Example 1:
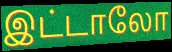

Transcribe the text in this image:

இட்டாலோ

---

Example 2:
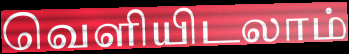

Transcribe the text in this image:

வெளியிடலாம்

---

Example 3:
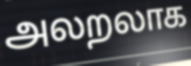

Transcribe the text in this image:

அலறலாக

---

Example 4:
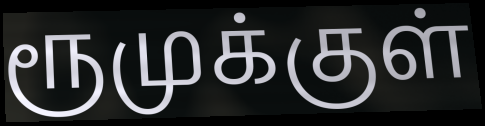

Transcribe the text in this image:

ரூமுக்குள்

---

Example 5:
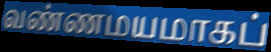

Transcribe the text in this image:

வண்ணமயமாகப்